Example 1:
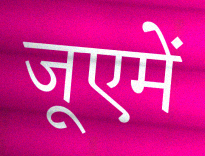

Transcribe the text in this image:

जूएमें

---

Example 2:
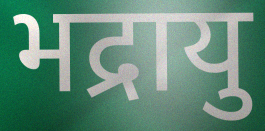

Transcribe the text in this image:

भद्रायु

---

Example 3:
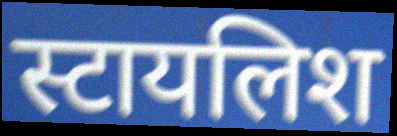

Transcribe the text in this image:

स्टायलिश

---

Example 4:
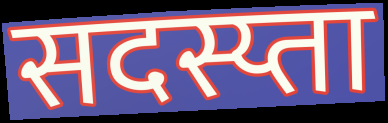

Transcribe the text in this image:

सदस्य्ता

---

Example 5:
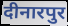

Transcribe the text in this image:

दीनारपुर